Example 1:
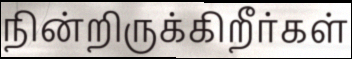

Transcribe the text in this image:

நின்றிருக்கிறீர்கள்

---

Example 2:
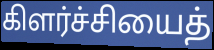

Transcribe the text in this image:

கிளர்ச்சியைத்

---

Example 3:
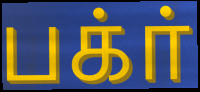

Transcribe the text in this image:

பக்ர்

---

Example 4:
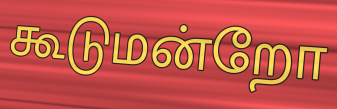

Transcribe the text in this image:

கூடுமன்றோ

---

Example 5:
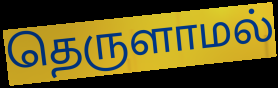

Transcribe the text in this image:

தெருளாமல்